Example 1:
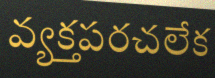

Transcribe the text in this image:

వ్యక్తపరచలేక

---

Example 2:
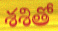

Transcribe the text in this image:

శశితో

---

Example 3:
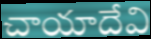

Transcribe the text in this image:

చాయాదేవి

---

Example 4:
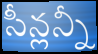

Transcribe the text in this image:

సీన్లన్నీ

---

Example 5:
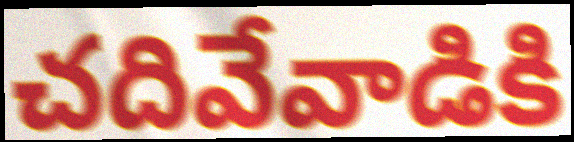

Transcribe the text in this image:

చదివేవాడికి